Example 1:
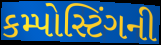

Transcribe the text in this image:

કમ્પોસ્ટિંગની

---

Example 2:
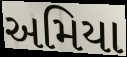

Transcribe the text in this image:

અમિયા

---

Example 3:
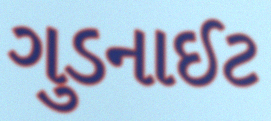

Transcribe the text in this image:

ગુડનાઈટ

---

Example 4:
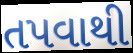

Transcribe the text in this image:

તપવાથી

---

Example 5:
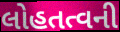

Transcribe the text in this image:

લોહતત્વની